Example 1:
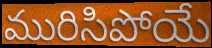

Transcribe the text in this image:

మురిసిపోయే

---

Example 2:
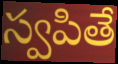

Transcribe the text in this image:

స్వపితే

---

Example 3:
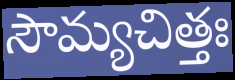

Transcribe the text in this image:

సౌమ్యచిత్తః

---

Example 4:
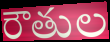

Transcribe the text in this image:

రౌతుల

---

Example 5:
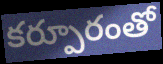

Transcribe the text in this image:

కర్పూరంతో